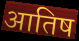
आतिष